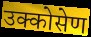
उक्कोसेण